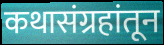
कथासंग्रहांतून